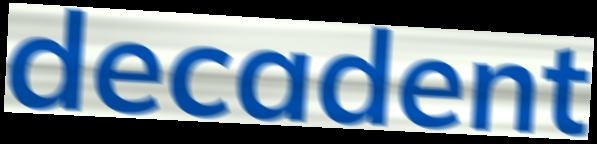
decadent